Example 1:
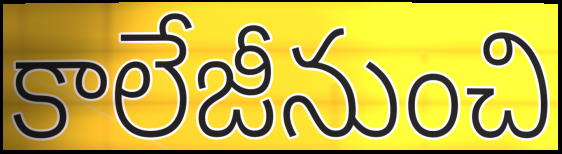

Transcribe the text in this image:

కాలేజీనుంచి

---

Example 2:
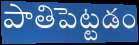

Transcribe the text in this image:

పాతిపెట్టడం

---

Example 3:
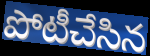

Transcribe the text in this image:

పోటీచేసిన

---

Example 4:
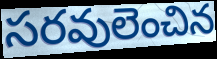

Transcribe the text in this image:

సరవులెంచిన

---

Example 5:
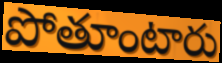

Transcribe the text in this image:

పోతూంటారు